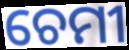
ଚେମୀ